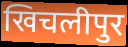
खिचलीपुर